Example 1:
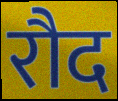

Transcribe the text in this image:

रौद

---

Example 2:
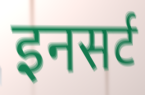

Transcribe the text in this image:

इनसर्ट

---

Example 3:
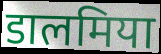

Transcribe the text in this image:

डालमिया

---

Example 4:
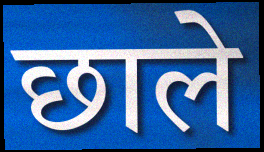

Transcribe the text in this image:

छाले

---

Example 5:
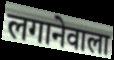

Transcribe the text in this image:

लगानेवाला